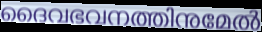
ദൈവഭവനത്തിനുമേൽ